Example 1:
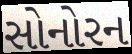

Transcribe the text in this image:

સોનોરન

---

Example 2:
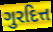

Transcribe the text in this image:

ગુરદિત્ત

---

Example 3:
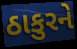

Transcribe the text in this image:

ઠાકુરને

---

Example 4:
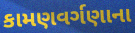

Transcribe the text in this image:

કામણવર્ગણાના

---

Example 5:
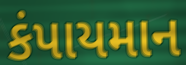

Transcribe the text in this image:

કંપાયમાન